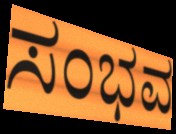
ಸಂಭವ